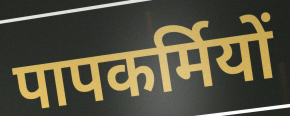
पापकर्मियों